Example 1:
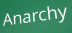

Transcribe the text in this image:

Anarchy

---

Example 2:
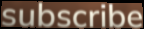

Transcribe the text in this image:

subscribe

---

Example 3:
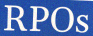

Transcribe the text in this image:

RPOs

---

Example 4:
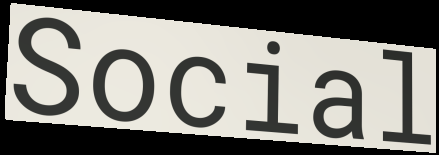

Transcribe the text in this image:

Social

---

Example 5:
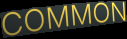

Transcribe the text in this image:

COMMON